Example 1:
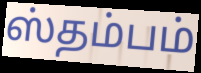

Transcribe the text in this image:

ஸ்தம்பம்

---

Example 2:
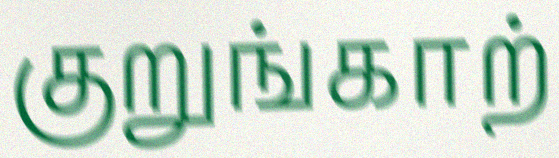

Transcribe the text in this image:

குறுங்காற்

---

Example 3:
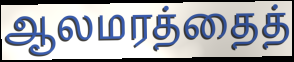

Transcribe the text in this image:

ஆலமரத்தைத்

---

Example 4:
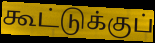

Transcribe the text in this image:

கூட்டுக்குப்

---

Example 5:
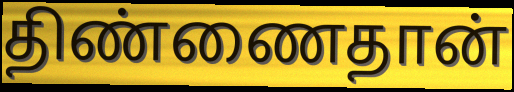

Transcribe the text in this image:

திண்ணைதான்